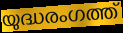
യുദ്ധരംഗത്ത്